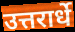
उत्तरार्धे